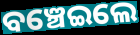
ବଞ୍ଚେଇଲେ